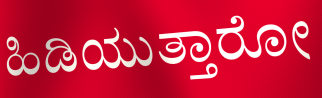
ಹಿಡಿಯುತ್ತಾರೋ